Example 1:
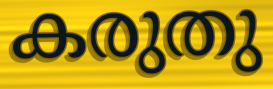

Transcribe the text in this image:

കരുതു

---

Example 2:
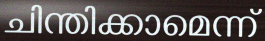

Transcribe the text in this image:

ചിന്തിക്കാമെന്ന്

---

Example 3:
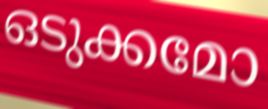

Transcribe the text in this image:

ഒടുക്കമോ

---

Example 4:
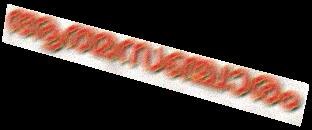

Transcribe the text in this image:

ആത്മസഞ്ചാരം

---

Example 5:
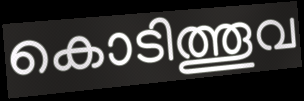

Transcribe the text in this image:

കൊടിത്തൂവ